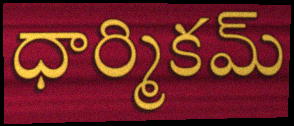
ధార్మికమ్